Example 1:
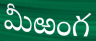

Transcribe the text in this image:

మీఱంగ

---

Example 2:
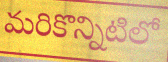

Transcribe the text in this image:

మరికొన్నిటిలో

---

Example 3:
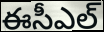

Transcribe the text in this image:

ఈసీఎల్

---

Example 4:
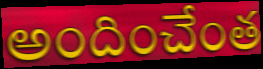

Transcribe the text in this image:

అందించేంత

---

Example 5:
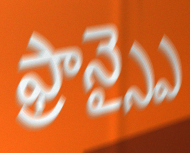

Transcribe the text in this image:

ఫ్రాన్స్పై